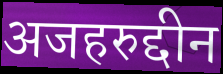
अजहरुद्दीन